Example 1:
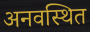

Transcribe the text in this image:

अनवस्थित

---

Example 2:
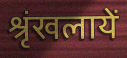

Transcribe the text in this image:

श्रृंखलायें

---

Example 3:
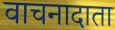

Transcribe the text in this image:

वाचनादाता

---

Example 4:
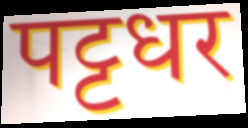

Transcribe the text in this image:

पट्टधर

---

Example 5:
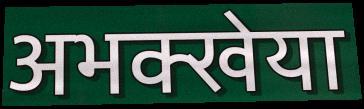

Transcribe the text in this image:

अभक्खेया